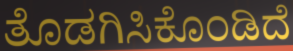
ತೊಡಗಿಸಿಕೊಂಡಿದೆ